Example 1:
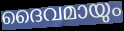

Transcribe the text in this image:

ദൈവമായും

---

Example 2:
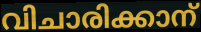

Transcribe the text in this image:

വിചാരിക്കാന്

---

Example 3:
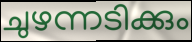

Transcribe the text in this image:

ചുഴന്നടിക്കും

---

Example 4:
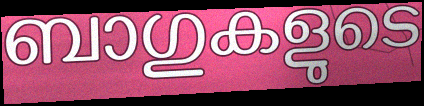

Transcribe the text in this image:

ബാഗുകളുടെ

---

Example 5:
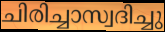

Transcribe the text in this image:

ചിരിച്ചാസ്വദിച്ചു